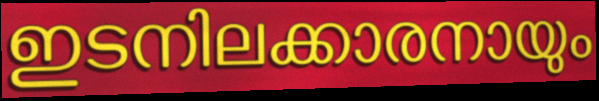
ഇടനിലക്കാരനായും